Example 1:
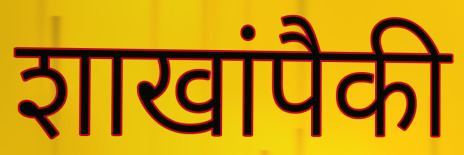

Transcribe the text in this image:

शाखांपैकी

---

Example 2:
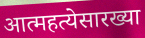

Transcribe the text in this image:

आत्महत्येसारख्या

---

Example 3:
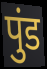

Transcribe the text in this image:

पुंड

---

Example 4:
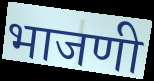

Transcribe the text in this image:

भाजणी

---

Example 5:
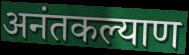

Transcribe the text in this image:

अनंतकल्याण